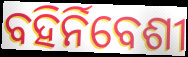
ବହିର୍ନିବେଶୀ